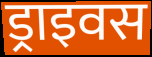
ड्राइवस